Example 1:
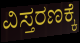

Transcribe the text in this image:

ವಿಸ್ತರಣಕ್ಕೆ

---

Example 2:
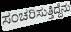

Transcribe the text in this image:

ಸಂಚರಿಸುತ್ತಿದ್ದೆನು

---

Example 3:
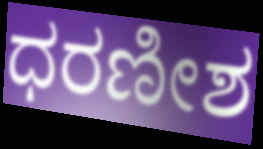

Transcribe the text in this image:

ಧರಣೀಶ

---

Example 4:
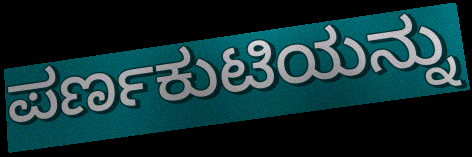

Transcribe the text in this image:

ಪರ್ಣಕುಟಿಯನ್ನು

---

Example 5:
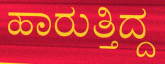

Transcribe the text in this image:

ಹಾರುತ್ತಿದ್ದ